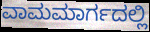
ವಾಮಮಾರ್ಗದಲ್ಲಿ